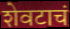
शेवटाचं